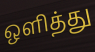
ஒளித்து